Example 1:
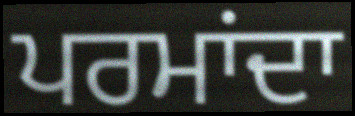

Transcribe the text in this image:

ਪਰਮਾਂਦਾ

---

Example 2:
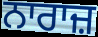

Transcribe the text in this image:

ਨਾਰਾਜ਼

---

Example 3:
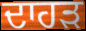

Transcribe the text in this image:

ਦਾਹੜ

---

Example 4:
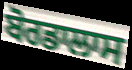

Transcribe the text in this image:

ਬੋਰਡਾਲਾਸ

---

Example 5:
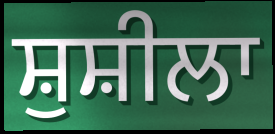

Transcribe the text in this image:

ਸ਼ੁਸ਼ੀਲਾ